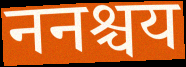
ननश्चय